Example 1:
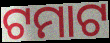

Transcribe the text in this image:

ଟମାଟ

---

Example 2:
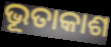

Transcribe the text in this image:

ଭୂତାକାଶ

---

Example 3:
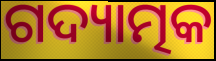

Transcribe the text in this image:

ଗଦ୍ୟାତ୍ମକ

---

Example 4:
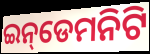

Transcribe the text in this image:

ଇନ୍‌ଡେମନିଟି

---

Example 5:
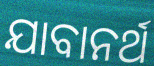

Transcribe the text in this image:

ଯାବାନର୍ଥ